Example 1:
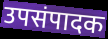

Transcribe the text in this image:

उपसंपादक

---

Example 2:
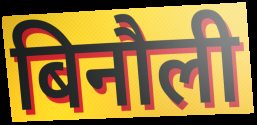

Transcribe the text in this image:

बिनौली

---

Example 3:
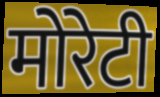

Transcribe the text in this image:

मोरेटी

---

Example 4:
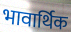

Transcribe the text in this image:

भावार्थिक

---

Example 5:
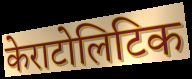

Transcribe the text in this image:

केराटोलिटिक